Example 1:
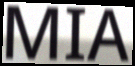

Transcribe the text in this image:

MIA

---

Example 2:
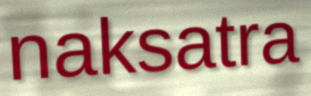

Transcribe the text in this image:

naksatra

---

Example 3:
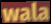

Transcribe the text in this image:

wala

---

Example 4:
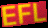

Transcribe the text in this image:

EFL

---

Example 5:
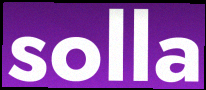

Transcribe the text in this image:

solla